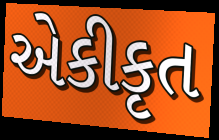
એકીકૃત